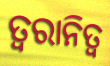
ତ୍ୱରାନିତ୍ଵ